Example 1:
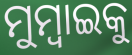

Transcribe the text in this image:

ମୁମ୍ୱାଇକୁ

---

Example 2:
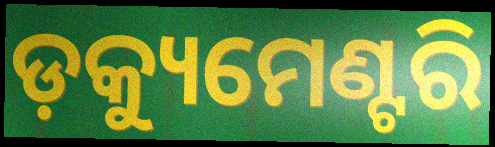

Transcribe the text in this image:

ଡ଼କ୍ୟୁମେଣ୍ଟରି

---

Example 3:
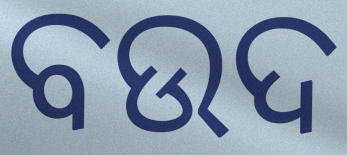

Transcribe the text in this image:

ବଉଦ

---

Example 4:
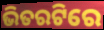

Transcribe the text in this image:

ଭିତରଟିରେ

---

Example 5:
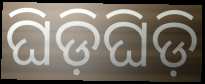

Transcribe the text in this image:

ଘିଡ଼ିଘିଡ଼ି